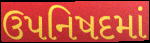
ઉપનિષદમાં